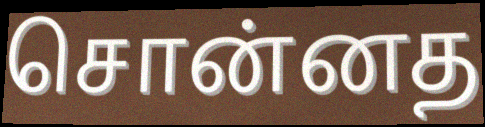
சொன்னத